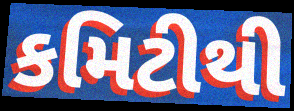
કમિટીથી